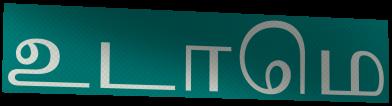
உடாமெ